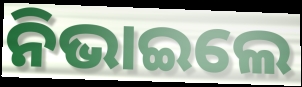
ନିଭାଇଲେ